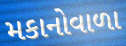
મકાનોવાળા